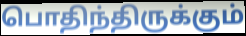
பொதிந்திருக்கும்